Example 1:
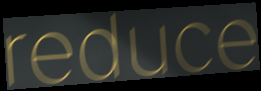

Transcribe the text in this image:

reduce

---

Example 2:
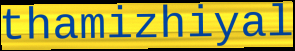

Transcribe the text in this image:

thamizhiyal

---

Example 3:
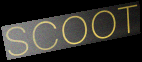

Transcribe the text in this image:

SCOOT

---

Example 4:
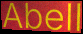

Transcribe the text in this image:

Abell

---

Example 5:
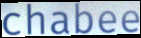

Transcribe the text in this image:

chabee